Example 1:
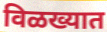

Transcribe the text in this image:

विळख्यात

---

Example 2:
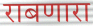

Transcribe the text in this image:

राबणारा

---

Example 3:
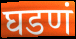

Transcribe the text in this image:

घडणं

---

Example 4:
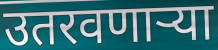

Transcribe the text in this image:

उतरवणाऱ्या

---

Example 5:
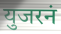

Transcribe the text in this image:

युजरनं